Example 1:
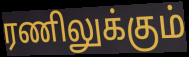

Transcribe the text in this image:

ரணிலுக்கும்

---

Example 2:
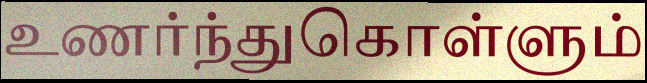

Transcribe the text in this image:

உணர்ந்துகொள்ளும்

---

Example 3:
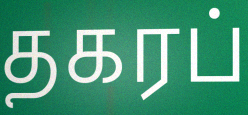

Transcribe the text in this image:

தகரப்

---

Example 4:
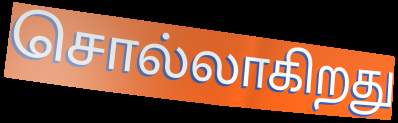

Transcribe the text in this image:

சொல்லாகிறது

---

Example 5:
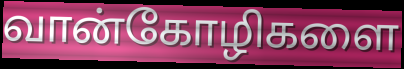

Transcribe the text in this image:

வான்கோழிகளை